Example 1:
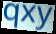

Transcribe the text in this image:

qxy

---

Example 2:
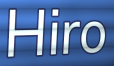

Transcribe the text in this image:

Hiro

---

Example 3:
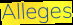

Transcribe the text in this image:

Alleges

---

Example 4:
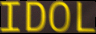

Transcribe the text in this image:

IDOL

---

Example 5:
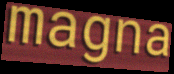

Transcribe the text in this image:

magna